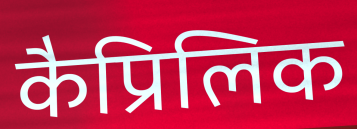
कैप्रिलिक